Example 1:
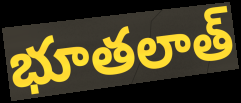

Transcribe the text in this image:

భూతలాత్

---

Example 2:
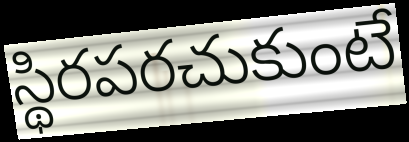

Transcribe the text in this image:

స్థిరపరచుకుంటే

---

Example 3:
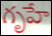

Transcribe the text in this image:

గృహే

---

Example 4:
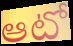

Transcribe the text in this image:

ఆటో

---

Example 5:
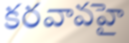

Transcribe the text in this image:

కరవావహై